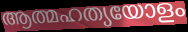
ആത്മഹത്യയോളം